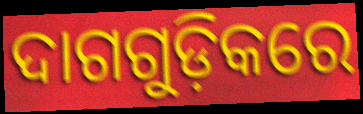
ଦାଗଗୁଡ଼ିକରେ